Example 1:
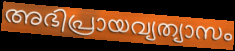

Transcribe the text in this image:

അഭിപ്രായവ്യത്യാസം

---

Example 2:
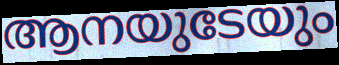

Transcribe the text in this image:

ആനയുടേയും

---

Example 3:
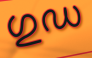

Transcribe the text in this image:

ഗുഡ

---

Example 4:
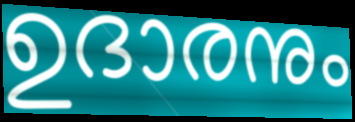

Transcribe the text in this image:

ഉദാരനും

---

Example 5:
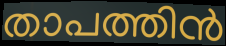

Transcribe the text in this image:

താപത്തിൻ